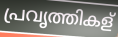
പ്രവൃത്തികള്